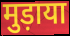
मुड़ाया